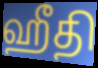
ஹீதி